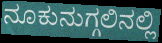
ನೂಕುನುಗ್ಗಲಿನಲ್ಲಿ